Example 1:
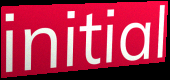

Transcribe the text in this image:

initial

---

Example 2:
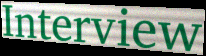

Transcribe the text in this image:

Interview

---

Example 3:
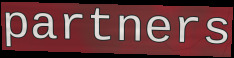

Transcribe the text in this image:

partners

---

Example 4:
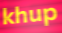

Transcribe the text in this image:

khup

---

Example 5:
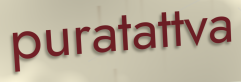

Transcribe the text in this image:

puratattva